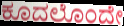
ಕೂದಲೊಂದೇ